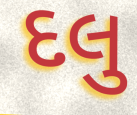
દલુ